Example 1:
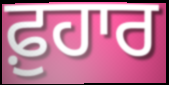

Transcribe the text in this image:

ਫ਼ੁਹਾਰ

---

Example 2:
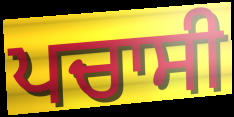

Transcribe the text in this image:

ਪਚਾਸੀ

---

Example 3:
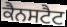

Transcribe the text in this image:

ਕੈਨਸਟੈਟ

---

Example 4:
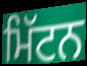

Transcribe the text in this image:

ਮਿੱਟਨ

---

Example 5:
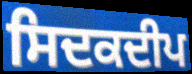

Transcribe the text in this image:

ਸਿਦਕਦੀਪ